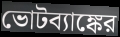
ভোটব্যাঙ্কের